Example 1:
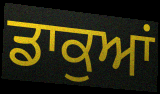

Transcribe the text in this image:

ਡਾਕੁਆਂ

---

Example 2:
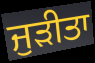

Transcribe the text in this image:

ਜੁੜੀਤਾ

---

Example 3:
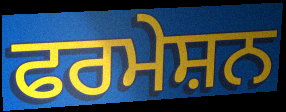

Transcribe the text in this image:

ਫਰਮੇਸ਼ਨ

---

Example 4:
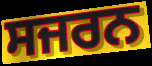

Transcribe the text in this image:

ਸਜਰਨ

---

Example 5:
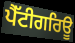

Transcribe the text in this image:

ਪੈੱਟੀਗਰਿਊ